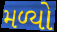
મળ્યો